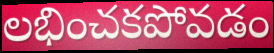
లభించకపోవడం